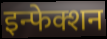
इन्‍फेक्‍शन